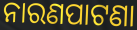
ନାରଣପାଟଣା